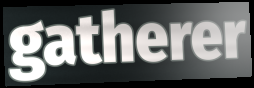
gatherer